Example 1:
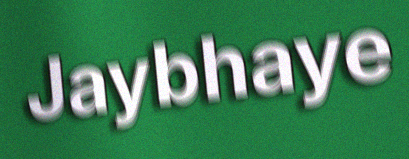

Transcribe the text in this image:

Jaybhaye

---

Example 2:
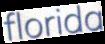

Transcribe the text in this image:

florida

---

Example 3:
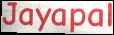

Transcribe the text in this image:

Jayapal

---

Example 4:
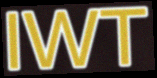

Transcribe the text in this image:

IWT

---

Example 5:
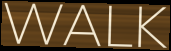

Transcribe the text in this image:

WALK